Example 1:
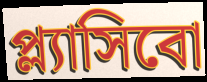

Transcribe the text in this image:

প্ল্যাসিবো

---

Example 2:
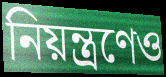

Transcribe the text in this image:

নিয়ন্ত্রণেও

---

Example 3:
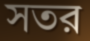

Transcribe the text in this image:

সতর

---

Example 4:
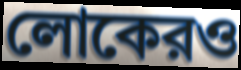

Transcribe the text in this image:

লোকেরও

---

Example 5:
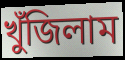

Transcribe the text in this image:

খুঁজিলাম